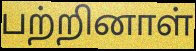
பற்றினாள்